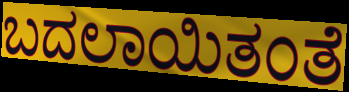
ಬದಲಾಯಿತಂತೆ